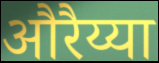
औरैय्या